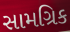
સામગ્રિક